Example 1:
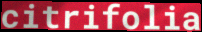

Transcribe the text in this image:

citrifolia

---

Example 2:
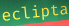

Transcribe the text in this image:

eclipta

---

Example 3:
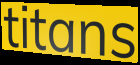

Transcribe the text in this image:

titans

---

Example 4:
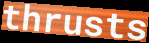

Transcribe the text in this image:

thrusts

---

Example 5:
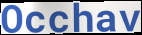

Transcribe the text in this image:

Occhav